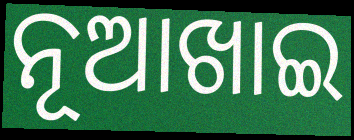
ନୂଆଖାଇ